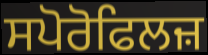
ਸਪੋਰੋਫਿਲਜ਼